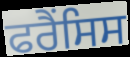
ਫਰੈਂਸਿਸ